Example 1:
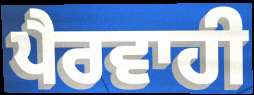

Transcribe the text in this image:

ਪੈਰਵਾਹੀ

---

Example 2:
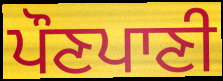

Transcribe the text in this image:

ਪੌਣਪਾਣੀ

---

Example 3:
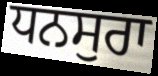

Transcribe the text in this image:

ਧਨਸੁਰਾ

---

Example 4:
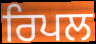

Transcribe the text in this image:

ਰਿਪਲ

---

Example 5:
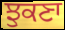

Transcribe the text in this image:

ਝੁਕਣਾ